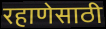
रहाणेसाठी